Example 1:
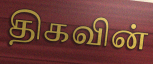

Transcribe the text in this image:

திகவின்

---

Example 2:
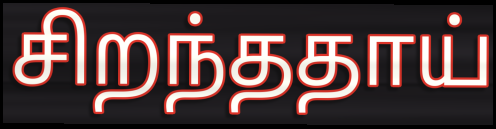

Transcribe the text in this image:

சிறந்ததாய்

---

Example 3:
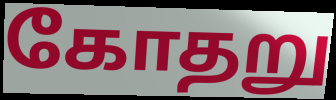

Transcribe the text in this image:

கோதறு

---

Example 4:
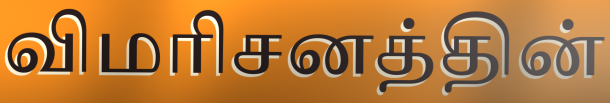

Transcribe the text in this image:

விமரிசனத்தின்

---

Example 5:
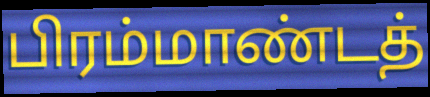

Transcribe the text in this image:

பிரம்மாண்டத்